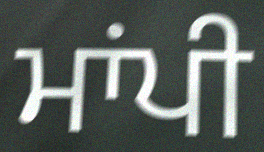
ਮਾਂਪੀ